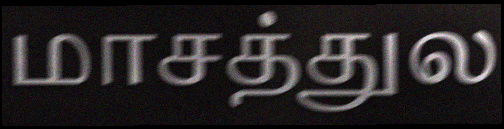
மாசத்துல